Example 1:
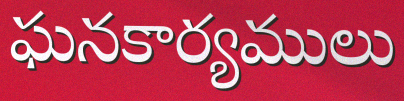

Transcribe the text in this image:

ఘనకార్యములు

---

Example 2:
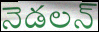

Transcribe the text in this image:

నెడలన్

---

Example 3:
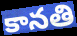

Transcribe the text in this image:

కానతి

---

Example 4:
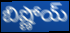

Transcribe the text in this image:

బిష్ణోయ్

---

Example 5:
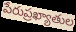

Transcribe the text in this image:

పేరుప్రఖ్యాతుల